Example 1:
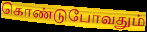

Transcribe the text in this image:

கொண்டுபோவதும்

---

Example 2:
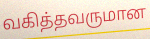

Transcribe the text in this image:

வகித்தவருமான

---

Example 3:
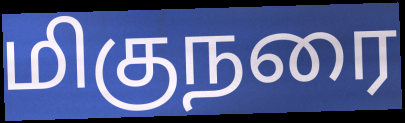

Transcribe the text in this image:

மிகுநரை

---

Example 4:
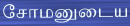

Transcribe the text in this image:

சோமனுடைய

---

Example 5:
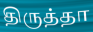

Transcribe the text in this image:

திருத்தா